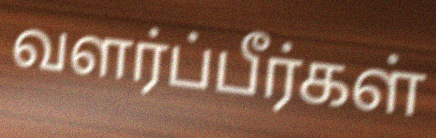
வளர்ப்பீர்கள்